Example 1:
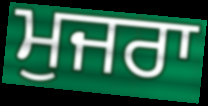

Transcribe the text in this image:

ਮੁਜਰਾ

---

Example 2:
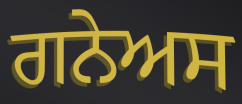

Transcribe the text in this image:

ਗਨੇਅਸ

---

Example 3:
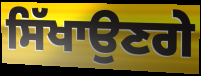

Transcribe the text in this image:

ਸਿੱਖਾਉਣਗੇ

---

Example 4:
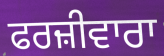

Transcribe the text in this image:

ਫਰਜ਼ੀਵਾਰਾ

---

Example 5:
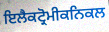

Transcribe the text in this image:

ਇਲੈਕਟ੍ਰੋਮੀਕਨਿਕਲ